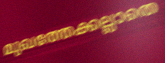
മുഖത്തേക്കല്ലാതെ